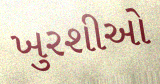
ખુરશીઓ